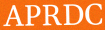
APRDC